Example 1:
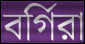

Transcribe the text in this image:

বর্গিরা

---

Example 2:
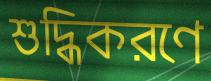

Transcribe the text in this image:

শুদ্ধিকরণে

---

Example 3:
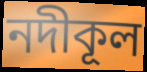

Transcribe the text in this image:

নদীকূল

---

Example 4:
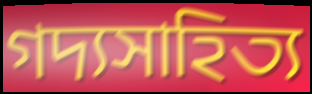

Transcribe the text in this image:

গদ্যসাহিত্য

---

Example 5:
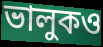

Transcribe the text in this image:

ভালুকও